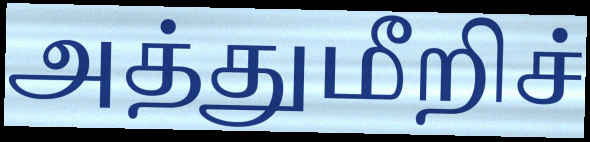
அத்துமீறிச்